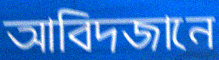
আবিদজানে